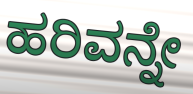
ಹರಿವನ್ನೇ